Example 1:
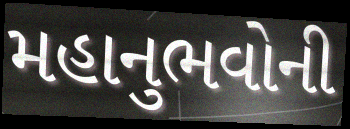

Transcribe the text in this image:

મહાનુભવોની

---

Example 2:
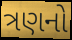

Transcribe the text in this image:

ત્રણનો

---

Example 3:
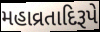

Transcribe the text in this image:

મહાવ્રતાદિરૂપે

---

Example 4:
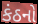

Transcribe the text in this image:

કંઠનો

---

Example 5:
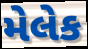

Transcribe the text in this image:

મેલેક